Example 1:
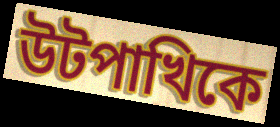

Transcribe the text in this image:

উটপাখিকে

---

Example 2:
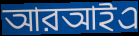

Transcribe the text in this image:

আরআইএ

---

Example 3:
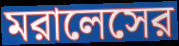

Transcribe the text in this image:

মরালেসের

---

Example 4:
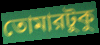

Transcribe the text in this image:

তোমারটুকু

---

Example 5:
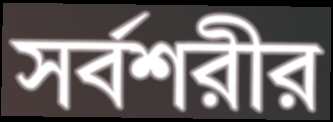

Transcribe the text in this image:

সর্বশরীর